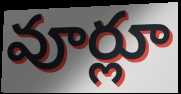
వూర్లూ